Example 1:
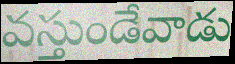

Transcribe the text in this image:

వస్తుండేవాడు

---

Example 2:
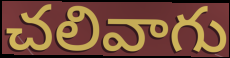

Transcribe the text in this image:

చలివాగు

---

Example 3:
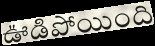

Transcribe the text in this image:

ఊడిపోయింది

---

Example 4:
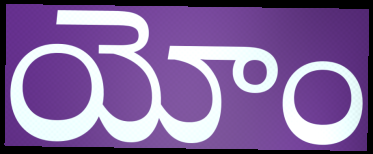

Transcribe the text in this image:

యోం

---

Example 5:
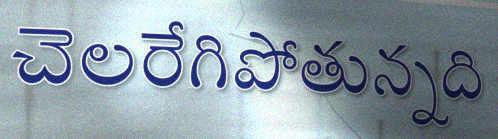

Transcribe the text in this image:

చెలరేగిపోతున్నది